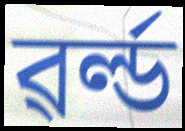
ৱৰ্ল্ড